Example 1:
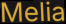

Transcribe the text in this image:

Melia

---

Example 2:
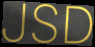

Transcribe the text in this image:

JSD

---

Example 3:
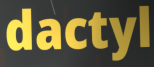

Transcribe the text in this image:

dactyl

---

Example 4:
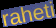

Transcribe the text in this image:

raheti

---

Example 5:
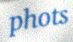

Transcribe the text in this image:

phots